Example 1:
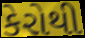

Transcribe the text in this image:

કેરોથી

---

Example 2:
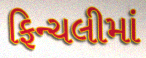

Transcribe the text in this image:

ફિન્ચલીમાં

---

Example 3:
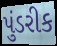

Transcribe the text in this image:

પુંડરીક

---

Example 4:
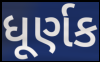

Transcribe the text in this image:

ધૂર્ણક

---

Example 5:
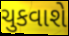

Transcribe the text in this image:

ચુકવાશે